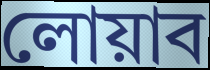
লোয়াব